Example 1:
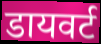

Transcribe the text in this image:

डायवर्ट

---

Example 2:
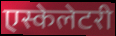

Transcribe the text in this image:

एस्केलेटरी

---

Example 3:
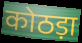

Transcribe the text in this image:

कोठड़ा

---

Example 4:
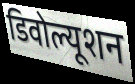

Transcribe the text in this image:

डिवोल्यूशन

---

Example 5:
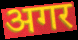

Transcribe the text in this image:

अगर